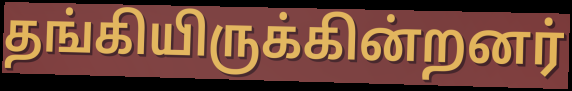
தங்கியிருக்கின்றனர்